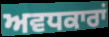
ਅਵਧਕਾਰਾਂ